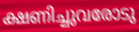
ക്ഷണിച്ചുവരോടു